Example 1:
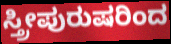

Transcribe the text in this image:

ಸ್ತ್ರೀಪುರುಷರಿಂದ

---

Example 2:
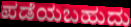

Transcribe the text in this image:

ಪಡೆಯಬಹುದು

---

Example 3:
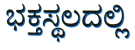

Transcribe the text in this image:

ಭಕ್ತಸ್ಥಲದಲ್ಲಿ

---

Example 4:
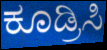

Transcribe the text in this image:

ಕೂಡ್ರಿಸಿ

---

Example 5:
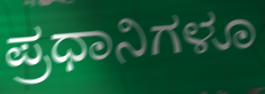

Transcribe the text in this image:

ಪ್ರಧಾನಿಗಳೂ